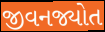
જીવનજ્યોત